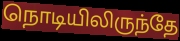
நொடியிலிருந்தே